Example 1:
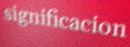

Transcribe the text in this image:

significacion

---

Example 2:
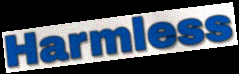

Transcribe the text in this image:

Harmless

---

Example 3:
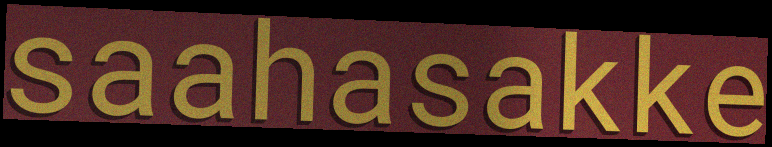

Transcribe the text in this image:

saahasakke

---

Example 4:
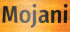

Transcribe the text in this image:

Mojani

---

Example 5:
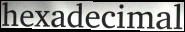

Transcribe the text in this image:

hexadecimal